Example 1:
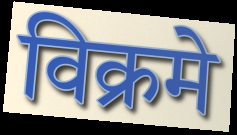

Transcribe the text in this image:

विक्रमे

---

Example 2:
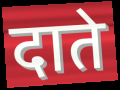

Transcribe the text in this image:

दाते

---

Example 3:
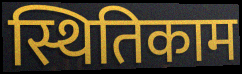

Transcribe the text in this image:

स्थितिकाम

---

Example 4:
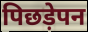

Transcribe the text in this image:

पिछड़ेपन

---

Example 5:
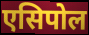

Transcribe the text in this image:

एसिपोल